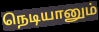
நெடியானும்